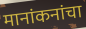
मानांकनांचा